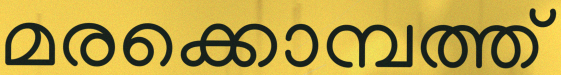
മരക്കൊമ്പത്ത്